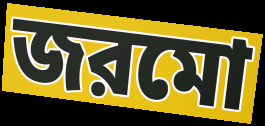
জরমো